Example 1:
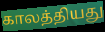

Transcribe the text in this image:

காலத்தியது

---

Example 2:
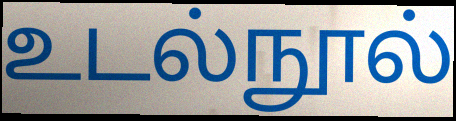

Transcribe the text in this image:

உடல்நூல்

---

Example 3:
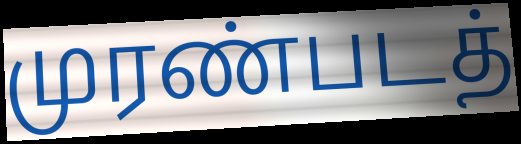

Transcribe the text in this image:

முரண்படத்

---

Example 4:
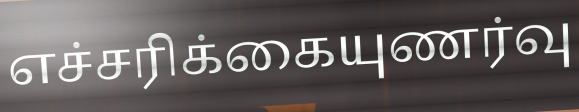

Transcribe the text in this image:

எச்சரிக்கையுணர்வு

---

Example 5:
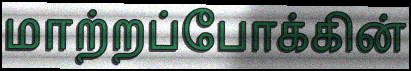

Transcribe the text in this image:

மாற்றப்போக்கின்